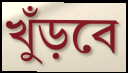
খুঁড়বে